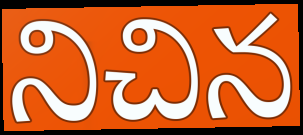
నిచిన